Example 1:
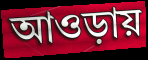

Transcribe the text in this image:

আওড়ায়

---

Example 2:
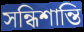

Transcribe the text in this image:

সন্ধিশান্তি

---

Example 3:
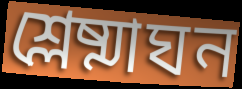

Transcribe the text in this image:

শ্লেষ্মাঘন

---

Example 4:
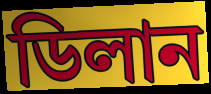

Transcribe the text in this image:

ডিলান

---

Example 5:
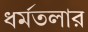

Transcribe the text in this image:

ধর্মতলার